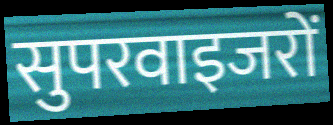
सुपरवाइजरों